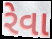
રેવા